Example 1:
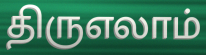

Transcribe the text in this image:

திருஎலாம்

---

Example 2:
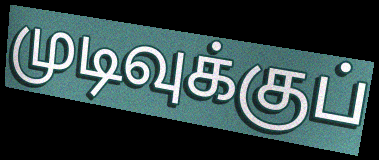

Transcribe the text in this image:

முடிவுக்குப்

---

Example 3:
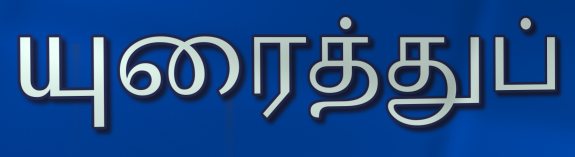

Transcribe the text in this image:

யுரைத்துப்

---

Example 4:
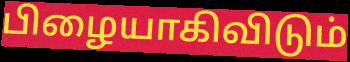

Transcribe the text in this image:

பிழையாகிவிடும்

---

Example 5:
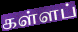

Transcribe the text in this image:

கள்ளப்